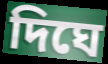
দিঘে